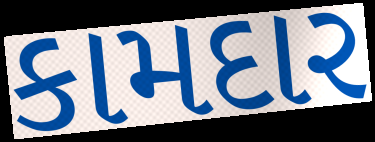
કામદાર